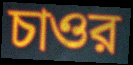
চাওর